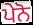
ਪੇਨੋ